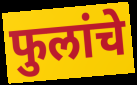
फुलांचे